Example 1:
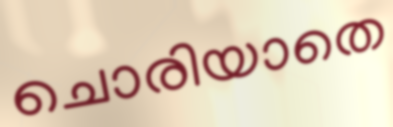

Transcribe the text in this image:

ചൊരിയാതെ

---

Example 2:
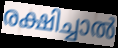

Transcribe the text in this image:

രക്ഷിച്ചാൽ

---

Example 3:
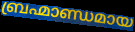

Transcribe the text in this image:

ബ്രഹ്മാണ്ഡമായ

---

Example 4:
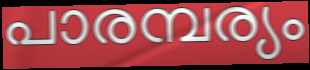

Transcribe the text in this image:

പാരമ്പര്യം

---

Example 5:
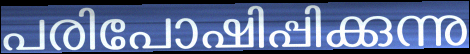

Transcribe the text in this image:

പരിപോഷിപ്പിക്കുന്നു